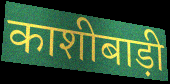
काशीबाड़ी